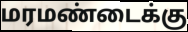
மரமண்டைக்கு